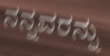
ನನ್ನವರನ್ನು